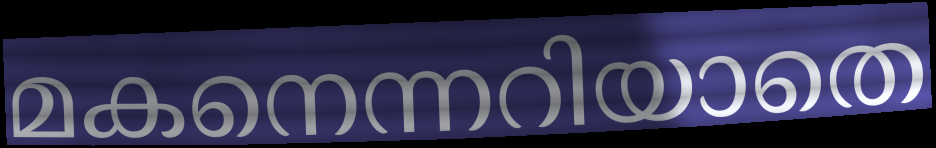
മകനെന്നറിയാതെ